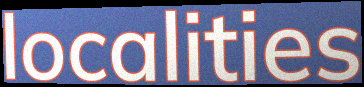
localities